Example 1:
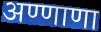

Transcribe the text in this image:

अण्णाणा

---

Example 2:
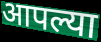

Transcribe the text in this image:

आपल्या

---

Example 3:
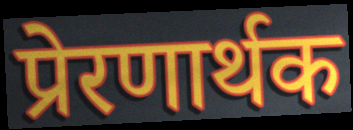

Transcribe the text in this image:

प्रेरणार्थक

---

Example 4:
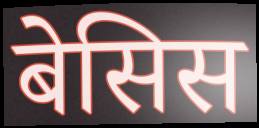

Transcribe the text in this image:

बेसिस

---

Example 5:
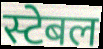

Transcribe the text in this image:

स्‍टेबल